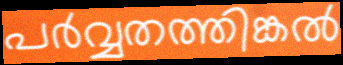
പർവ്വതത്തിങ്കൽ